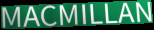
MACMILLAN